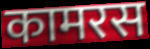
कामरस